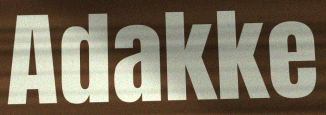
Adakke